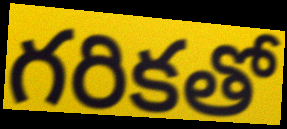
గరికతో